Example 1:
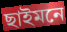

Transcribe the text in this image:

ছাইমনে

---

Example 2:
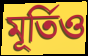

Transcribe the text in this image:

মূৰ্তিও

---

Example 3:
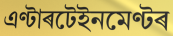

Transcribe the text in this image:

এণ্টাৰটেইনমেণ্টৰ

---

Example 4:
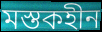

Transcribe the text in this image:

মস্তকহীন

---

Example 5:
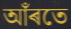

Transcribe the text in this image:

আঁৰতে